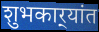
शुभकार्यांत